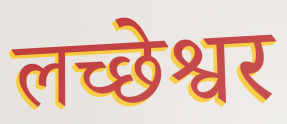
लच्छेश्वर